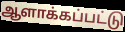
ஆளாக்கப்பட்டு